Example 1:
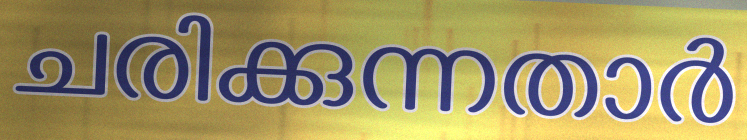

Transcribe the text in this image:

ചരിക്കുന്നതാർ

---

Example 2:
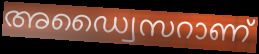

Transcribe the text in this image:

അഡ്വൈസറാണ്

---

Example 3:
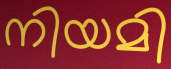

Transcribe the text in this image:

നിയമി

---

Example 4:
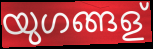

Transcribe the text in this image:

യുഗങ്ങള്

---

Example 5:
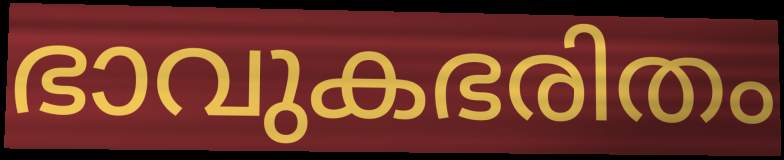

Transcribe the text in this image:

ഭാവുകഭരിതം